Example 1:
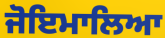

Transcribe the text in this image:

ਜੋਇਮਾਲਿਆ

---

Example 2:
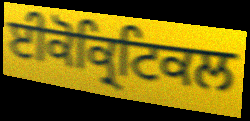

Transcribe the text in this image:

ਈਕੋਕ੍ਰਿਟਿਕਲ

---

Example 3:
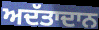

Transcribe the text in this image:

ਅਦੱਤਾਦਾਨ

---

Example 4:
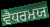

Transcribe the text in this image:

ਵੈਧਰਮਯ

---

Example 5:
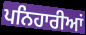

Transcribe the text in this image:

ਪਨਿਹਾਰੀਆਂ